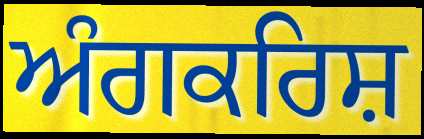
ਅੰਗਕਰਿਸ਼